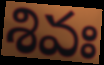
శివః